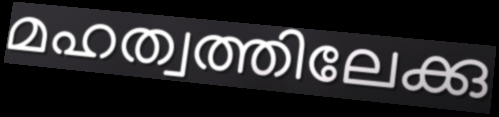
മഹത്വത്തിലേക്കു